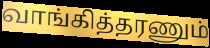
வாங்கித்தரணும்